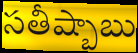
సతీష్బాబు